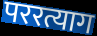
पररत्याग